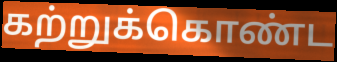
கற்றுக்கொண்ட